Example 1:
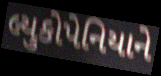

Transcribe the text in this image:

લ્યુકોપેનિયાને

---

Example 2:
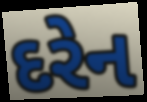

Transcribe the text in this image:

દરેન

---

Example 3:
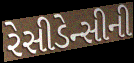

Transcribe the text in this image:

રેસીડેન્સીની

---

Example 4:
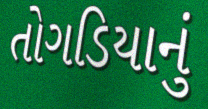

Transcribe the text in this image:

તોગડિયાનું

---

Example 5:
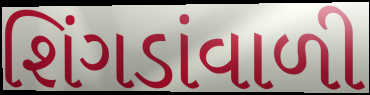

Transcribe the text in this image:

શિંગડાંવાળી